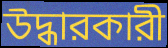
উদ্ধারকারী